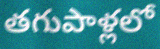
తగుపాళ్లలో